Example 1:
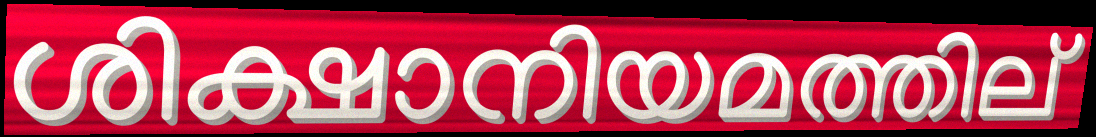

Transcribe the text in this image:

ശിക്ഷാനിയമത്തില്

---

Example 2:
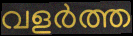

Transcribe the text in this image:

വളർത്ത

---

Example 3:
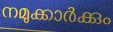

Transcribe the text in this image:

നമുക്കാർക്കും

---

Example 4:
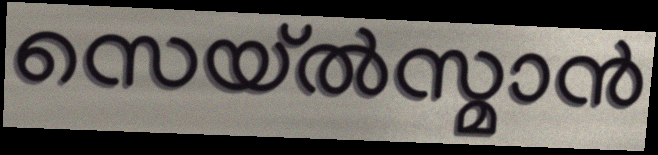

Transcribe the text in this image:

സെയ്ൽസ്മാൻ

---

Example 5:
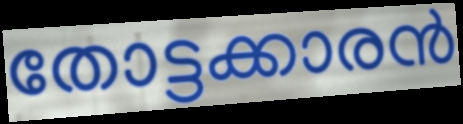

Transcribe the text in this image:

തോട്ടക്കാരൻ